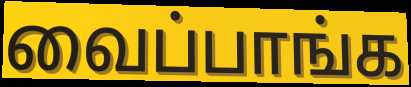
வைப்பாங்க